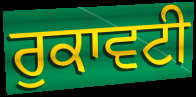
ਰੁਕਾਵਟੀ